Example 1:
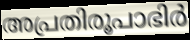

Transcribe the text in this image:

അപ്രതിരൂപാഭിർ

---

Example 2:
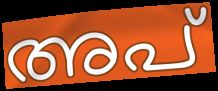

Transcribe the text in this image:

അപ്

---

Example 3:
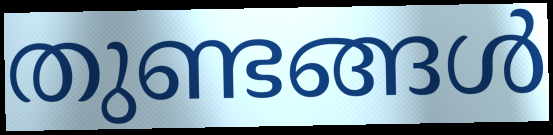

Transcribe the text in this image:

തുണ്ടങ്ങൾ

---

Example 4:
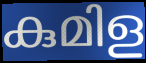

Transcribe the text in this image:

കുമിള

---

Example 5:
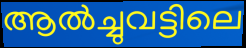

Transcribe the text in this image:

ആൽച്ചുവട്ടിലെ